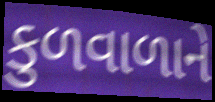
કુળવાળાને